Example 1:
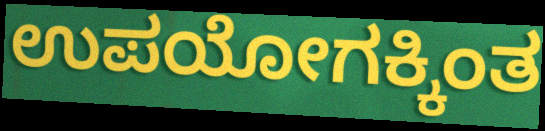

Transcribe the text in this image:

ಉಪಯೋಗಕ್ಕಿಂತ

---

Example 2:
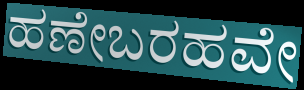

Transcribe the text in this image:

ಹಣೇಬರಹವೇ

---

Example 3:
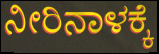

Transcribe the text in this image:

ನೀರಿನಾಳಕ್ಕೆ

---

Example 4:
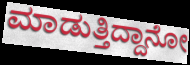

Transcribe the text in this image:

ಮಾಡುತ್ತಿದ್ದಾನೋ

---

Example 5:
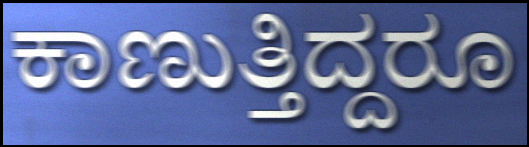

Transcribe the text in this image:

ಕಾಣುತ್ತಿದ್ದರೂ